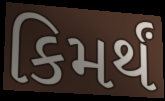
કિમર્થં